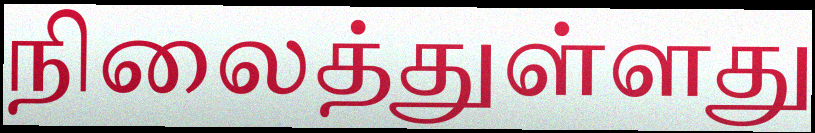
நிலைத்துள்ளது